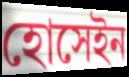
হোসেইন